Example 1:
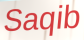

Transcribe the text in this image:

Saqib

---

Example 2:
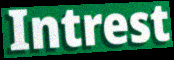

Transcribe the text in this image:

Intrest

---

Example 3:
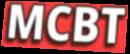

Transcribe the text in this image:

MCBT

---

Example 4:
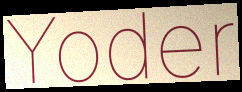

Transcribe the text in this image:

Yoder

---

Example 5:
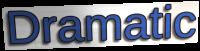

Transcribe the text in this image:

Dramatic